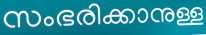
സംഭരിക്കാനുള്ള